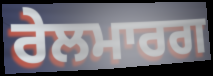
ਰੇਲਮਾਰਗ